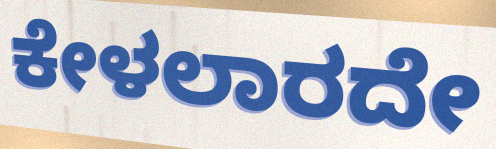
ಕೇಳಲಾರದೇ